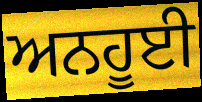
ਅਨਹੂਈ